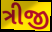
ત્રીજી